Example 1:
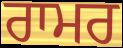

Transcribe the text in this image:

ਰਾਮਰ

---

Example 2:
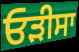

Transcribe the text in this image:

ਓੜੀਸਾ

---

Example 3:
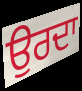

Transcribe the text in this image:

ਉਰਦਾ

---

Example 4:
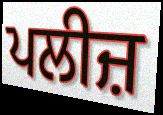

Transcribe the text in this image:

ਪਲੀਜ਼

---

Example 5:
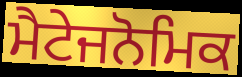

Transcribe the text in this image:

ਮੈਟੇਜਨੋਮਿਕ